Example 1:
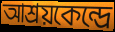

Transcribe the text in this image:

আশ্রয়কেন্দ্রে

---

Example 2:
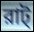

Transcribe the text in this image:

রাট্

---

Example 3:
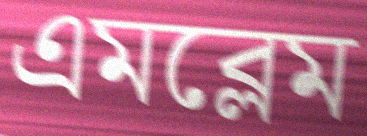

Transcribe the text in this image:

এমব্লেম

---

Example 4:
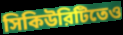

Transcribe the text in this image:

সিকিউরিটিতেও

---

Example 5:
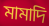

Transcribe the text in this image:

মামাদি